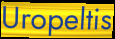
Uropeltis